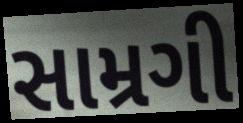
સામ્રગી